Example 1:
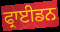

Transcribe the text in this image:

ਫ੍ਰਾਈਡਨ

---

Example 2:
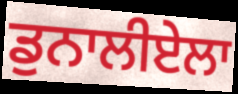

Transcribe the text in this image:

ਡੁਨਾਲੀਏਲਾ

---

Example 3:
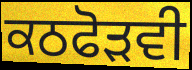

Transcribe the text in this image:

ਕਠਫੋੜਵੀ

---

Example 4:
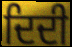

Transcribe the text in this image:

ਦਿਦੀ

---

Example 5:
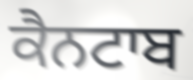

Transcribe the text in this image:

ਕੈਨਟਾਬ